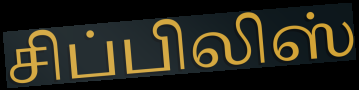
சிப்பிலிஸ்